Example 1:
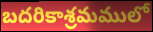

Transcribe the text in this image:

బదరికాశ్రమములో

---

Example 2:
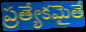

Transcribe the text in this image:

ప్రత్యేకమైతే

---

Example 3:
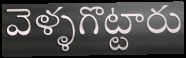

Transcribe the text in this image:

వెళ్ళగొట్టారు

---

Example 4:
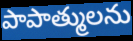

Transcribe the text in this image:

పాపాత్ములను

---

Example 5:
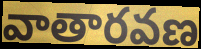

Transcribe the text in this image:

వాతారవణ